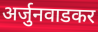
अर्जुनवाडकर